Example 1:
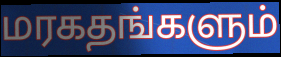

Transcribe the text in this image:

மரகதங்களும்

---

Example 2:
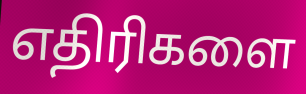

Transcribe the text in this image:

எதிரிகளை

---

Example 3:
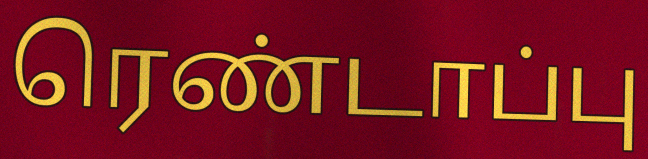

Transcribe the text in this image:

ரெண்டாப்பு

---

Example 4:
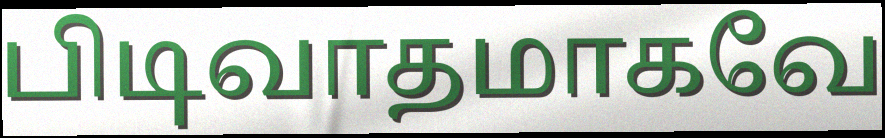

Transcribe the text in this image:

பிடிவாதமாகவே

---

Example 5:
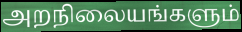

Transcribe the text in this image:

அறநிலையங்களும்